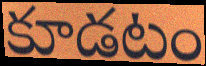
కూడటం